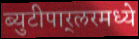
ब्युटीपार्लरमध्ये